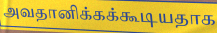
அவதானிக்கக்கூடியதாக